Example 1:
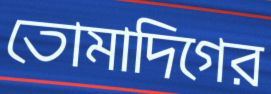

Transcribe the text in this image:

তোমাদিগের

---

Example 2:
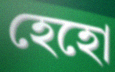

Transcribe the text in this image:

হেহো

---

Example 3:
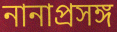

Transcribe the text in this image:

নানাপ্রসঙ্গ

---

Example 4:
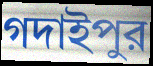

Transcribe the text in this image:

গদাইপুর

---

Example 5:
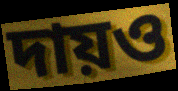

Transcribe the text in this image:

দায়ও